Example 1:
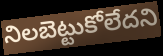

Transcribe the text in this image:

నిలబెట్టుకోలేదని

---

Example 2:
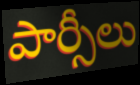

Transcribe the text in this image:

పార్సీలు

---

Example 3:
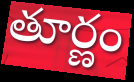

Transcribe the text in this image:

తూర్ణం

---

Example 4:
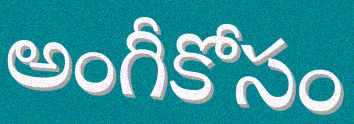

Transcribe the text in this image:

అంగీకోసం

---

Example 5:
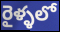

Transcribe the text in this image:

రైళ్ళలో